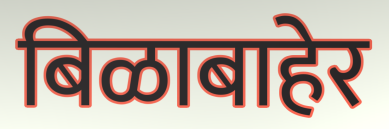
बिळाबाहेर